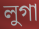
লুগা